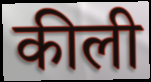
कीली